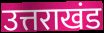
उत्तराखंड